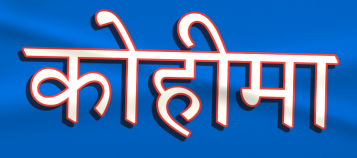
कोहीमा